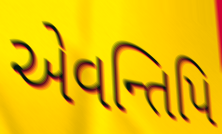
એવન્તિપિ